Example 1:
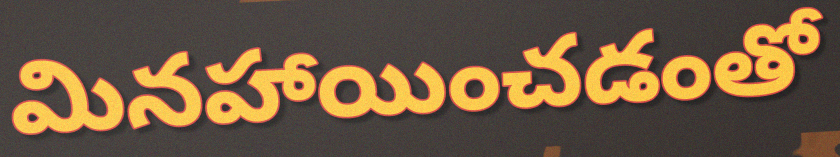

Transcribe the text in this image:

మినహాయించడంతో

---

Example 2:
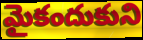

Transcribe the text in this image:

మైకందుకుని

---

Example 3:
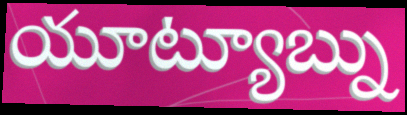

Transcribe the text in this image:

యూట్యూబ్ను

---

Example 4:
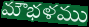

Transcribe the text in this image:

మౌభళము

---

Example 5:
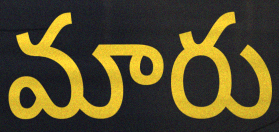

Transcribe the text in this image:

మారు